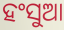
ହଂସୁଆ